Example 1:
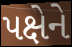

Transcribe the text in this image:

પક્ષેને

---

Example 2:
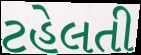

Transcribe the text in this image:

ટહેલતી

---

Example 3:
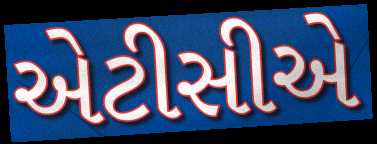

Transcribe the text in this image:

એટીસીએ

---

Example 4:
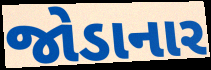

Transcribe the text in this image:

જોડાનાર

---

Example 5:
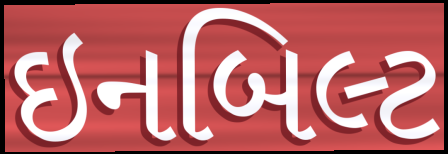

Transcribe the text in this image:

ઇનબિલ્ટ